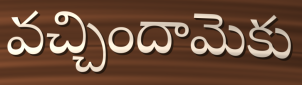
వచ్చిందామెకు